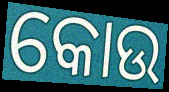
କୋଉ